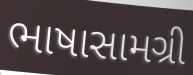
ભાષાસામગ્રી